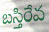
బస్తిరేవ